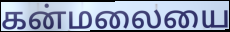
கன்மலையை